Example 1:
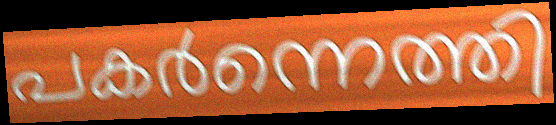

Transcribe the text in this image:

പകർന്നെത്തി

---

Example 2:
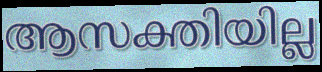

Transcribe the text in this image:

ആസക്തിയില്ല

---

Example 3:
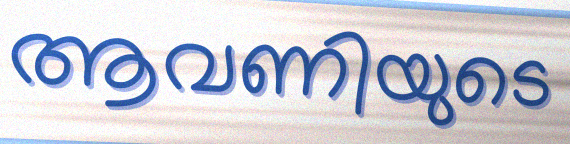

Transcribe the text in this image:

ആവണിയുടെ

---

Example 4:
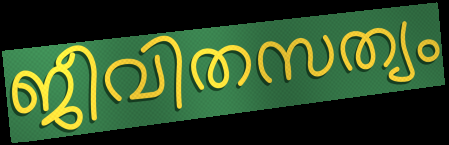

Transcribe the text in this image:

ജീവിതസത്യം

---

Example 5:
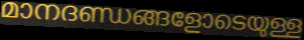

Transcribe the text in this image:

മാനദണ്ഡങ്ങളോടെയുള്ള